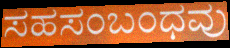
ಸಹಸಂಬಂಧವು